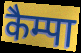
कैम्पा